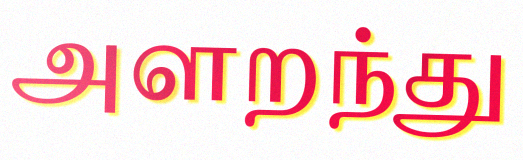
அளறந்து